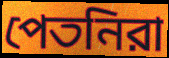
পেতনিরা